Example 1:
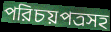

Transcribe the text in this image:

পরিচয়পত্রসহ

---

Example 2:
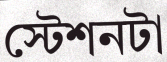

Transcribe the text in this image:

স্টেশনটা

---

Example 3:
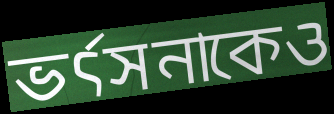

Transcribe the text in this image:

ভর্ৎসনাকেও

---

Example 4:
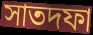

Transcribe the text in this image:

সাতদফা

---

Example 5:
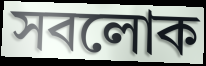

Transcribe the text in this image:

সবলোক